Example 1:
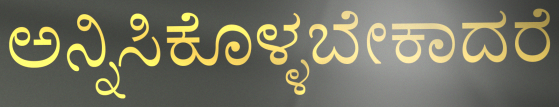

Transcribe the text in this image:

ಅನ್ನಿಸಿಕೊಳ್ಳಬೇಕಾದರೆ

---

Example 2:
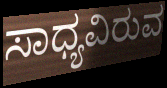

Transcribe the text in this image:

ಸಾಧ್ಯವಿರುವ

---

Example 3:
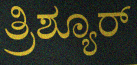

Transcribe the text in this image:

ತ್ರಿಶ್ಯೂರ್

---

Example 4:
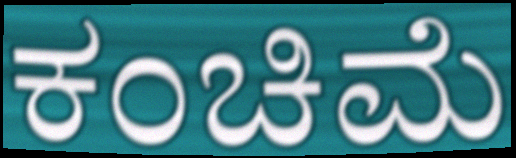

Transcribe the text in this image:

ಕಂಚಿಮೆ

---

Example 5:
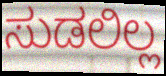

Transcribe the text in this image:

ಸುಡಲಿಲ್ಲ